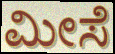
ಮೀಸೆ